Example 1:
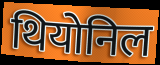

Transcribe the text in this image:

थियोनिल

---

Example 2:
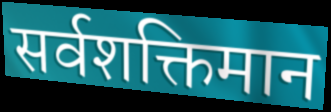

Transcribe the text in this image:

सर्वशक्तिमान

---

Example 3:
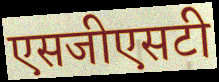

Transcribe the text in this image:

एसजीएसटी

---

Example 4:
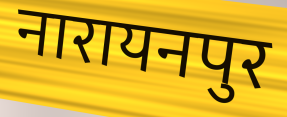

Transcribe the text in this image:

नारायनपुर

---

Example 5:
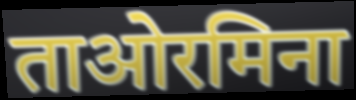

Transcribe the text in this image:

ताओरमिना